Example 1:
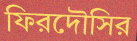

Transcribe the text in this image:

ফিরদৌসির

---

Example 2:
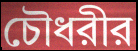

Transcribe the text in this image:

চৌধরীর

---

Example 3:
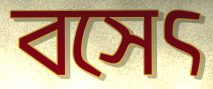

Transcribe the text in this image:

বসেৎ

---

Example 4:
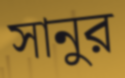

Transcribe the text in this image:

সানুর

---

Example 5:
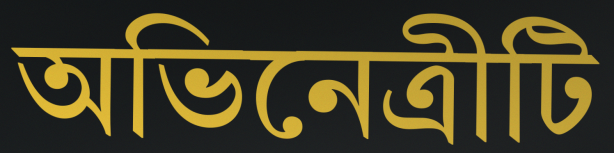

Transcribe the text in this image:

অভিনেত্রীটি